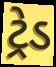
ટ્રેડ